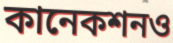
কানেকশনও